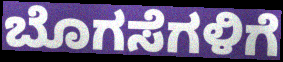
ಬೊಗಸೆಗಳಿಗೆ